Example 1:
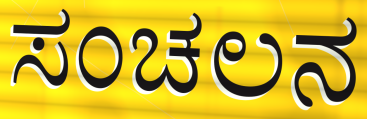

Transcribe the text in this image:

ಸಂಚಲನ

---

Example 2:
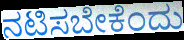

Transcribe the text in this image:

ನಟಿಸಬೇಕೆಂದು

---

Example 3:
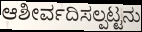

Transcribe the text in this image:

ಆಶೀರ್ವದಿಸಲ್ಪಟ್ಟನು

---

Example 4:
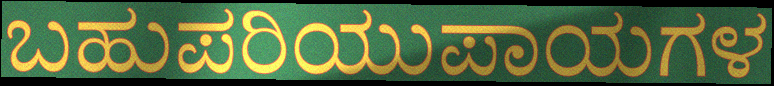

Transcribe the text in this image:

ಬಹುಪರಿಯುಪಾಯಗಳ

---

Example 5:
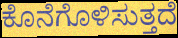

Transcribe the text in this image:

ಕೊನೆಗೊಳಿಸುತ್ತದೆ